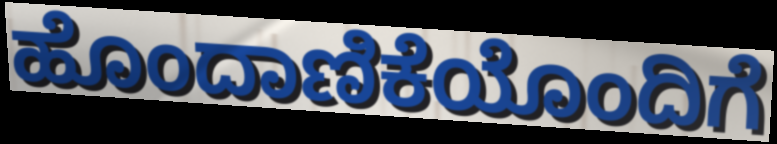
ಹೊಂದಾಣಿಕೆಯೊಂದಿಗೆ